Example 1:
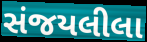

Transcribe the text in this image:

સંજયલીલા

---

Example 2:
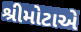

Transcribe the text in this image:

શ્રીમોટાએ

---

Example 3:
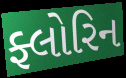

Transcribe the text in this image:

ફ્લોરિન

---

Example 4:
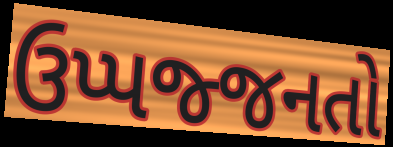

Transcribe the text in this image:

ઉપ્પજ્જનતો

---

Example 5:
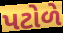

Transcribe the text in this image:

પટોળે